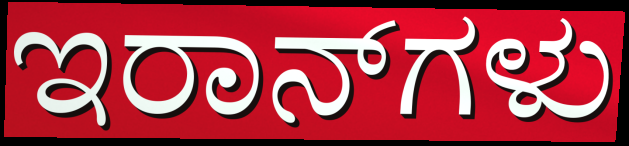
ಇರಾನ್‌ಗಳು